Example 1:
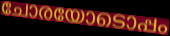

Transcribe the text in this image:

ചോരയോടൊപ്പം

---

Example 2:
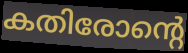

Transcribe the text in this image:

കതിരോന്റെ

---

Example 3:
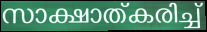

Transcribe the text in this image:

സാക്ഷാത്കരിച്ച്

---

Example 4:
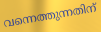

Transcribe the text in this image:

വന്നെത്തുന്നതിന്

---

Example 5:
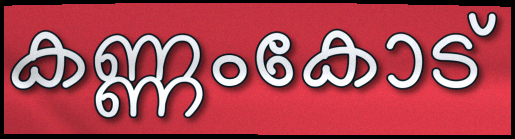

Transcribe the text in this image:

കണ്ണംകോട്